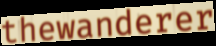
thewanderer